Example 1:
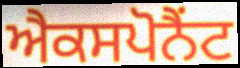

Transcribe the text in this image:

ਐਕਸਪੋਨੈਂਟ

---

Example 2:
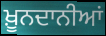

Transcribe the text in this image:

ਖ਼ੂਨਦਾਨੀਆਂ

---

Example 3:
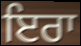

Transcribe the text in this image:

ਇਰਾ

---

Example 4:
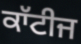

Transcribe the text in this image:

ਕਾੱਟੀਜ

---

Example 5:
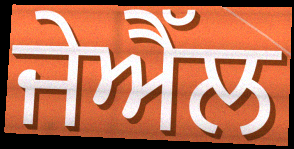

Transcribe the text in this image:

ਜੇਐੱਲ